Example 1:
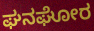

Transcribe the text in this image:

ಘನಘೋರ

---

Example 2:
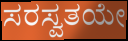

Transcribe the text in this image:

ಸರಸ್ವತಯೇ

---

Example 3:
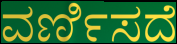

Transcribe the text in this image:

ವರ್ಣಿಸದೆ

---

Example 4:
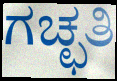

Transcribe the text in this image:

ಗಚ್ಛತಿ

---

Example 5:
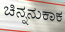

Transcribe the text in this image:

ಚಿನ್ನನುಕಾಕ